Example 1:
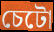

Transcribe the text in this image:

চেটো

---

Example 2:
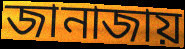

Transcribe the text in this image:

জানাজায়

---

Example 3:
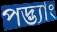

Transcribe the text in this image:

পদ্ভ্যাং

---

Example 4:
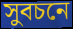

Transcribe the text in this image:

সুবচনে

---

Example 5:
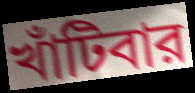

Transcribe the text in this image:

খাঁটিবার